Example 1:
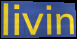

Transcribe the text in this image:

livin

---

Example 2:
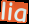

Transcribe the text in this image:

lia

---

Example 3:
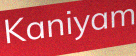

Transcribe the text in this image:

Kaniyam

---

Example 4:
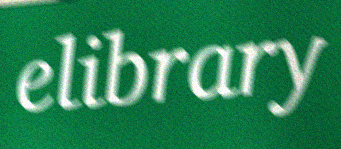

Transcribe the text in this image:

elibrary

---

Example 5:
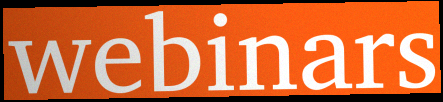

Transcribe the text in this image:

webinars